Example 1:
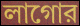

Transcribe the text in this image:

লাগোর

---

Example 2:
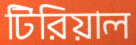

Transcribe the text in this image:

টিরিয়াল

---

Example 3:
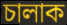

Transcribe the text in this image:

চালাক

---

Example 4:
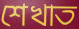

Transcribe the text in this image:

শেখাত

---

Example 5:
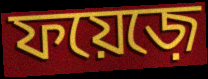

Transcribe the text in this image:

ফয়েজ়ে